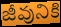
జీవునికి